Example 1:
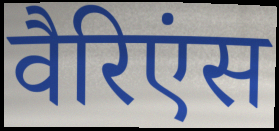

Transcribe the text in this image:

वैरिएंस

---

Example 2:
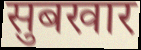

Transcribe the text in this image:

सुबखार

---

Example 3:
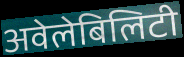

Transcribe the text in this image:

अवेलेबिलिटी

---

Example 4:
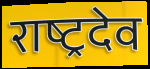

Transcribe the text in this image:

राष्ट्रदेव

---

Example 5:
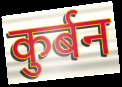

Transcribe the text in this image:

कुर्बन